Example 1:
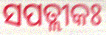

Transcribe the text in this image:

ସପତ୍ଲୀକଃ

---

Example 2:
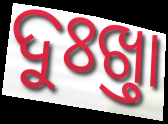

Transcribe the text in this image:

ଦୁଃଖ୍ତା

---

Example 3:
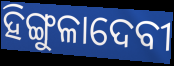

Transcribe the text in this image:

ହିଙ୍ଗୁଳାଦେବୀ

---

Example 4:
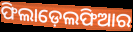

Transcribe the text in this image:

ଫିଲାଡ଼େଲଫିଆର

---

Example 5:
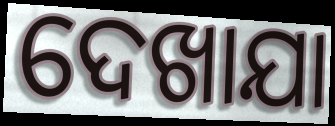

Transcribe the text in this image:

ଦେଖାଯା